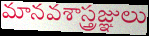
మానవశాస్త్రజ్ఞులు